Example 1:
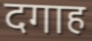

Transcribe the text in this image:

दगाह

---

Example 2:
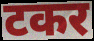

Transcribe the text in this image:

टकर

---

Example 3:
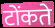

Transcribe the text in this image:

टोंकते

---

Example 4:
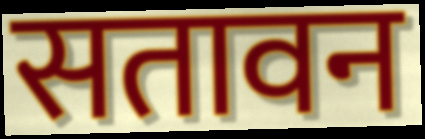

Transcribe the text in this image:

सतावन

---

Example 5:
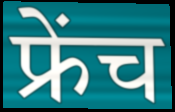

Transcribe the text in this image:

फ्रेंच